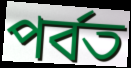
পর্বত